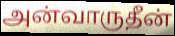
அன்வாருதீன்